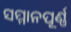
ସମ୍ମାନପୂର୍ଣ୍ଣ